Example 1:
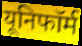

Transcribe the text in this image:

यूनिफॉर्म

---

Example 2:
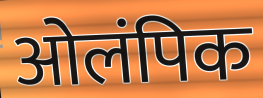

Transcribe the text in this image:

ओलंपिक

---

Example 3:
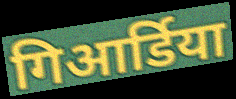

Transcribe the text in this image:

गिआर्डिया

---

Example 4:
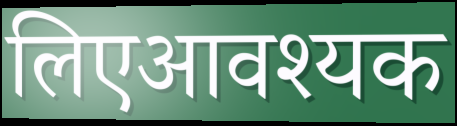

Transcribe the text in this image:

लिएआवश्यक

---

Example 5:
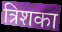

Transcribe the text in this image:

त्रिशका